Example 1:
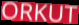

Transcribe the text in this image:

ORKUT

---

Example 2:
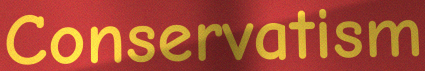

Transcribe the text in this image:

Conservatism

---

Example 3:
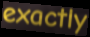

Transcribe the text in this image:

exactly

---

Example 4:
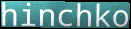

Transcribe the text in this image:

hinchko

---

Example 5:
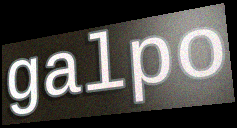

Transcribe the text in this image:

galpo